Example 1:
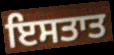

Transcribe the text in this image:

ਇਸਤਾਤ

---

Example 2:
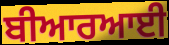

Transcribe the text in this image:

ਬੀਆਰਆਈ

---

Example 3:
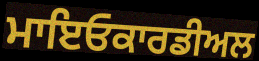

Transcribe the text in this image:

ਮਾਇਓਕਾਰਡੀਅਲ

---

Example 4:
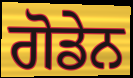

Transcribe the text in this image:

ਗੋਡੇਨ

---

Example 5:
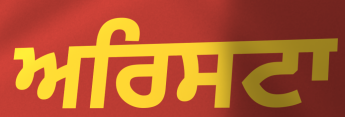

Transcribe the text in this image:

ਅਰਿਸਟਾ